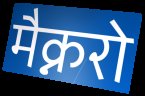
मैक्नरो